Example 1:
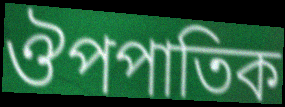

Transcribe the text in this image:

ঔপপাতিক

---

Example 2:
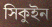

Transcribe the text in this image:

সিকুইন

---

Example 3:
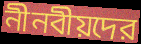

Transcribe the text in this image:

নীনবীয়দের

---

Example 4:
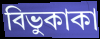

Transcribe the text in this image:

বিভুকাকা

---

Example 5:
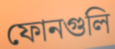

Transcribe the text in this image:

ফোনগুলি